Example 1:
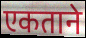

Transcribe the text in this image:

एकताने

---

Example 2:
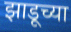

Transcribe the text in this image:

झाडूच्या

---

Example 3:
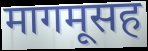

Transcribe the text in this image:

मागमूसह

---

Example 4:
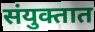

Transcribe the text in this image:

संयुक्तात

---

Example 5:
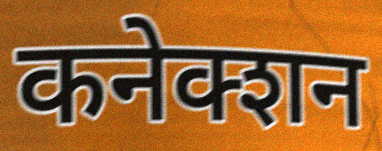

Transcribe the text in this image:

कनेक्शन